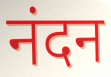
नंदन